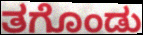
ತಗೊಂಡು